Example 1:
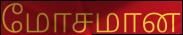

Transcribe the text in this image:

மோசமான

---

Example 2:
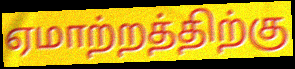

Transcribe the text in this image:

ஏமாற்றத்திற்கு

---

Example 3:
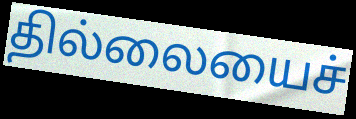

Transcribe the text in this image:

தில்லையைச்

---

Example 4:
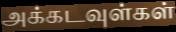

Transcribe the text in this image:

அக்கடவுள்கள்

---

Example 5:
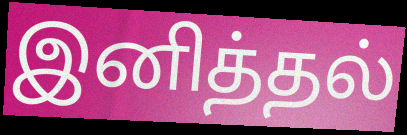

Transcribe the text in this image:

இனித்தல்